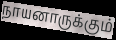
நாயனாருக்கும்